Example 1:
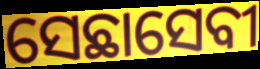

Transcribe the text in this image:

ସେଛାସେବୀ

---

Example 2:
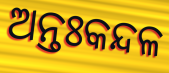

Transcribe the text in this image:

ଅନ୍ତଃକନ୍ଦଳ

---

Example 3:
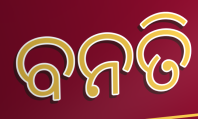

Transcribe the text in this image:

ବନତି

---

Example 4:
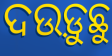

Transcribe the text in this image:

ଦଉଡ଼ୁଛୁ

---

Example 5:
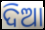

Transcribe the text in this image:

ଦିଆ